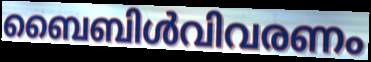
ബൈബിൾവിവരണം